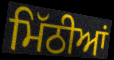
ਮਿੱਠੀਆਂ